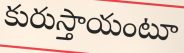
కురుస్తాయంటూ